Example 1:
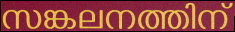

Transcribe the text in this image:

സങ്കലനത്തിന്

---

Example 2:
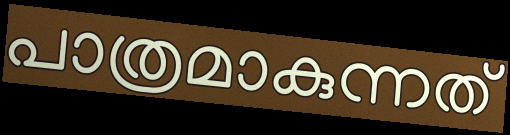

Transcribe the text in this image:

പാത്രമാകുന്നത്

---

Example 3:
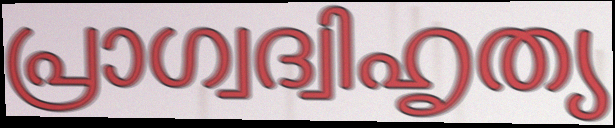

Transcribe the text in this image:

പ്രാഗ്വദ്വിഹൃത്യ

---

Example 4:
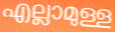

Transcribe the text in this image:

എല്ലാമുള്ള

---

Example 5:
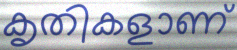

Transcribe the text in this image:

കൃതികളാണ്